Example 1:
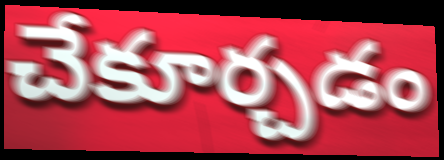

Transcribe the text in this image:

చేకూర్చడం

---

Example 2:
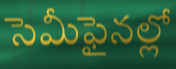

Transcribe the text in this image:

సెమీఫైనల్లో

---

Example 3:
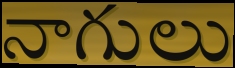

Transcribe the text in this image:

నాగులు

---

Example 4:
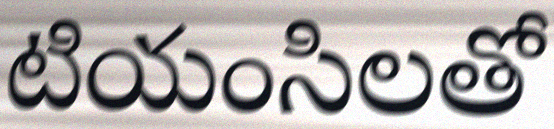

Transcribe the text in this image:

టియంసిలతో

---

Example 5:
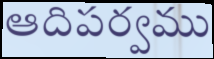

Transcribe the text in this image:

ఆదిపర్వము